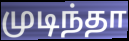
முடிந்தா